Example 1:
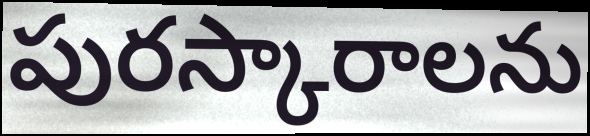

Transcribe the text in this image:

పురస్కారాలను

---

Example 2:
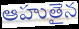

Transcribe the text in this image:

ఆహుతైన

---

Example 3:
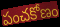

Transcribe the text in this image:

పంచకోణం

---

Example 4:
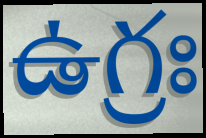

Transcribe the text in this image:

ఉగ్రః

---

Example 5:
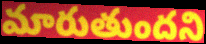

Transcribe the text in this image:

మారుతుందని